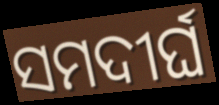
ସମଦୀର୍ଘ